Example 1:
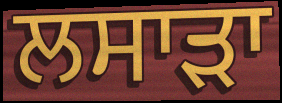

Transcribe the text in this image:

ਲਸਾੜਾ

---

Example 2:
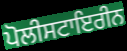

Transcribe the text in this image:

ਪੋਲੀਸਟਾਇਰੀਨ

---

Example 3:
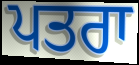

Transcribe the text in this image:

ਪਤਰਾ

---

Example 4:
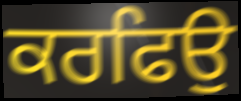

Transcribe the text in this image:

ਕਰਫਿਉ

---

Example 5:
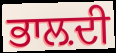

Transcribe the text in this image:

ਭਾਲ਼ਦੀ